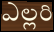
ఎల్లరి